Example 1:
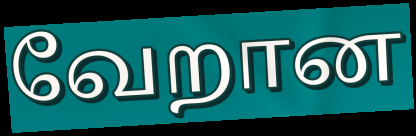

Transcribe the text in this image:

வேறான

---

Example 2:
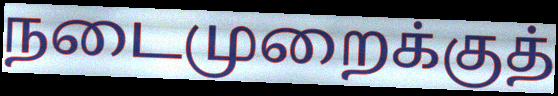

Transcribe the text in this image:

நடைமுறைக்குத்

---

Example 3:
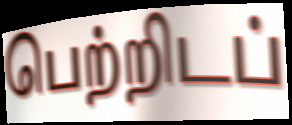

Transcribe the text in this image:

பெற்றிடப்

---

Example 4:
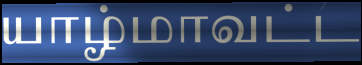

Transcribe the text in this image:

யாழ்மாவட்ட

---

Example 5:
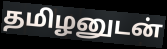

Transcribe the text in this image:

தமிழனுடன்